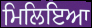
ਮਿਲਿਇਆ